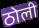
ठोली